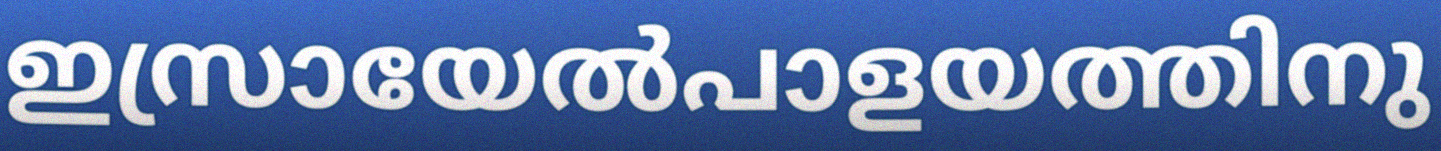
ഇസ്രായേൽപാളയത്തിനു